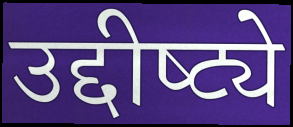
उद्दीष्ट्ये